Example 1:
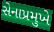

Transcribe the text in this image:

સેનાપ્રમુખે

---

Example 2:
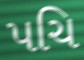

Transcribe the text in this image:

પચિ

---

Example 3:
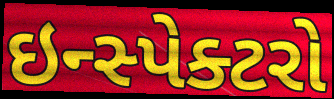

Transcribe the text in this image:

ઇન્સ્પેક્ટરો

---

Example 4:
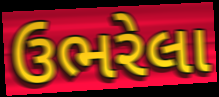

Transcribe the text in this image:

ઉભરેલા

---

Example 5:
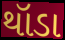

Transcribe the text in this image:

થૉડા